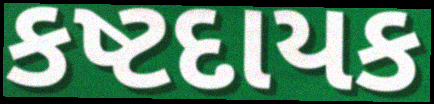
કષ્ટદાયક